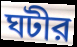
ঘটীর